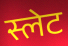
स्लेट